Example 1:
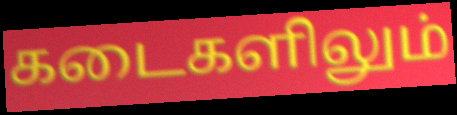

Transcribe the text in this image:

கடைகளிலும்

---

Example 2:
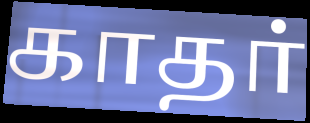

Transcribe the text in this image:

காதர்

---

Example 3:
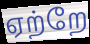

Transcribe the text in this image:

ஏற்றே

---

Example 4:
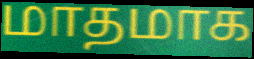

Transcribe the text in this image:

மாதமாக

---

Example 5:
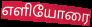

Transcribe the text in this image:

எளியோரை